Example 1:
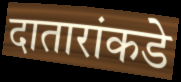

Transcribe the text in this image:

दातारांकडे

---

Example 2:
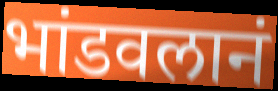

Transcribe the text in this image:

भांडवलानं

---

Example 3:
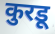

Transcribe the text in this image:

कुरडू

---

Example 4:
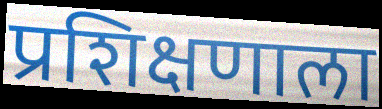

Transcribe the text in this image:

प्रशिक्षणाला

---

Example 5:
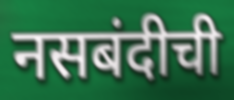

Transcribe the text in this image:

नसबंदीची